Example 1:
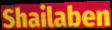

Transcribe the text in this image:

Shailaben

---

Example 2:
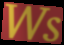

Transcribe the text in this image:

Ws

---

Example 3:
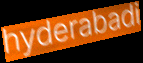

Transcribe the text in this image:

hyderabadi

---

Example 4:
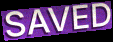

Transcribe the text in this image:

SAVED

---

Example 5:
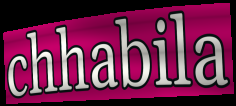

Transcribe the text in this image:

chhabila